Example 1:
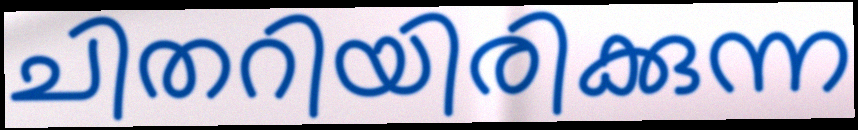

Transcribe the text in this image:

ചിതറിയിരിക്കുന്ന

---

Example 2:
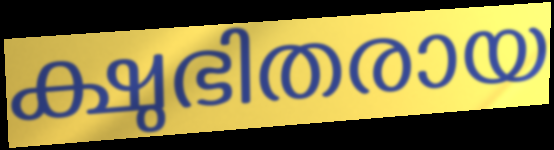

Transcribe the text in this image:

ക്ഷുഭിതരായ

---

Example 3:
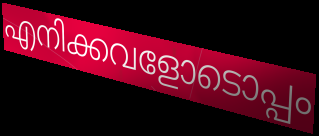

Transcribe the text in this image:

എനിക്കവളോടൊപ്പം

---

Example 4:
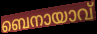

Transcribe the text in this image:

ബെനായാവ്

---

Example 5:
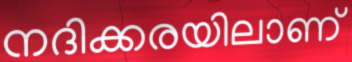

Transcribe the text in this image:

നദിക്കരയിലാണ്